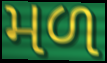
મળ